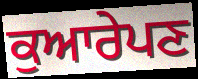
ਕੁਆਰੇਪਣ